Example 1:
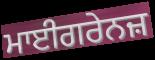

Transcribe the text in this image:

ਮਾਈਗਰੇਨਜ਼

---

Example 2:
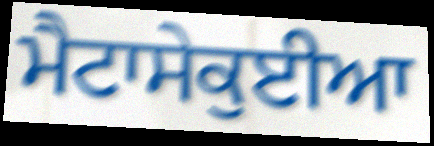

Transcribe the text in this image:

ਮੈਟਾਸੇਕੁਈਆ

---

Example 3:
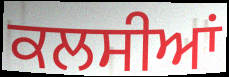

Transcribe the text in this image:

ਕਲਸੀਆਂ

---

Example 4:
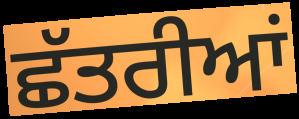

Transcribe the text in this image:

ਛੱਤਰੀਆਂ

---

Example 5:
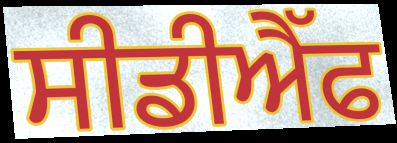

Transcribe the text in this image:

ਸੀਡੀਐੱਫ